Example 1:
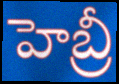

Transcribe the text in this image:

హెబ్రీ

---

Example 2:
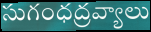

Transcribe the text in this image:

సుగంధద్రవ్యాలు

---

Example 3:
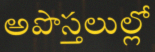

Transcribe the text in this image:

అపొస్తలుల్లో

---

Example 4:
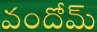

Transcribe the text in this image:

వందోమ్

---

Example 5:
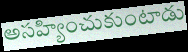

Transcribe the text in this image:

అసహ్యించుకుంటాడు